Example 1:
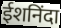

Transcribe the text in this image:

ईशनिंदा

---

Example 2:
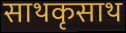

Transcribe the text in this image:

साथकृसाथ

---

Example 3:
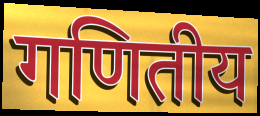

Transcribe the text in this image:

गणितीय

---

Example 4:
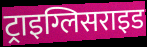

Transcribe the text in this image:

ट्राइग्लिसराइड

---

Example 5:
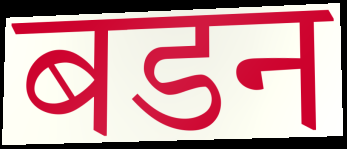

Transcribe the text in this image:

बडन